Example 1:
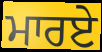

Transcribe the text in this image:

ਮਾਰਏ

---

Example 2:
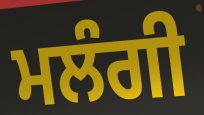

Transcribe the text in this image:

ਮਲੰਗੀ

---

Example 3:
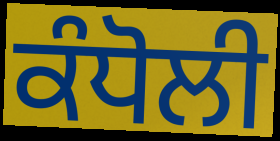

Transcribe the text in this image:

ਕੰਧੋਲੀ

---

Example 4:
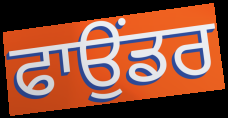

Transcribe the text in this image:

ਫਾਉਂਡਰ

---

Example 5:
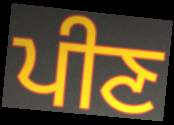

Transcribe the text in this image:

ਪੀਣ